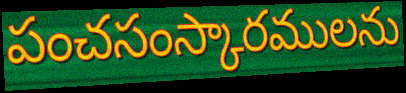
పంచసంస్కారములను